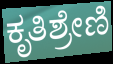
ಕೃತಿಶ್ರೇಣಿ